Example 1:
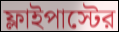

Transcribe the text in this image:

ফ্লাইপাস্টের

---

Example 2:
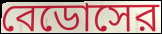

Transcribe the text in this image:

বেডোসের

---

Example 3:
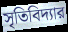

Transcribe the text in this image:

সৃতিবিদ্যার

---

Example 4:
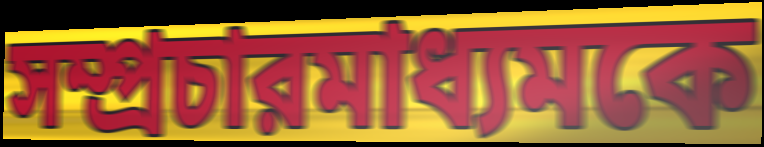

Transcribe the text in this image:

সম্প্রচারমাধ্যমকে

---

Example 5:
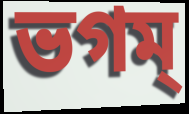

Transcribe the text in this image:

ভগম্